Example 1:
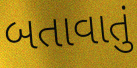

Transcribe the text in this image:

બતાવાતું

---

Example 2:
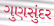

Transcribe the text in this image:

ગુણસુંદર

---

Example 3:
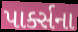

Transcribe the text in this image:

પાર્ક્સના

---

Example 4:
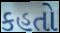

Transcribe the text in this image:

કહતો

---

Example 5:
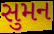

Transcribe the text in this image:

સુમન